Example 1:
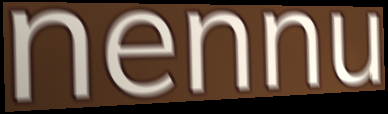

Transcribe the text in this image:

nennu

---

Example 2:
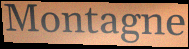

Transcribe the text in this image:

Montagne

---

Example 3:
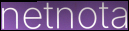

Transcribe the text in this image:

netnota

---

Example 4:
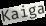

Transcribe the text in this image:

Kaiga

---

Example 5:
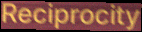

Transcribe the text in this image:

Reciprocity